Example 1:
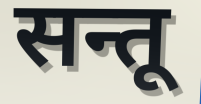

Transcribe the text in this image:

सन्तू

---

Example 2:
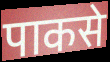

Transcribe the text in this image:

पाकसे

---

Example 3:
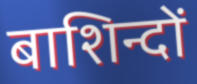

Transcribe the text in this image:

बाशिन्दों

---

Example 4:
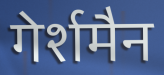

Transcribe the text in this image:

गेर्शमैन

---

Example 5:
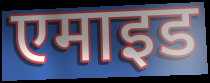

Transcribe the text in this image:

एमाइड